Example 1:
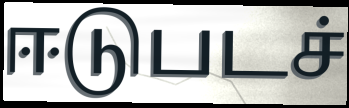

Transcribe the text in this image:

ஈடுபடச்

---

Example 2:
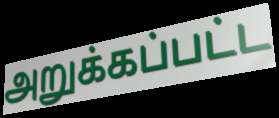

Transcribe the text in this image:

அறுக்கப்பட்ட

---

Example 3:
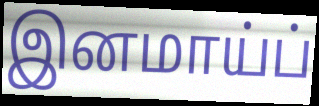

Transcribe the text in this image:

இனமாய்ப்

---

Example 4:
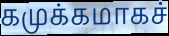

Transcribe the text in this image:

கமுக்கமாகச்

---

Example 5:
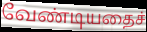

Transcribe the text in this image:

வேண்டியதைச்